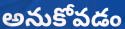
అనుకోవడం